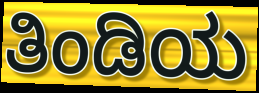
ತಿಂಡಿಯ